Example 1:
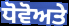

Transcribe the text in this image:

ਧੋਵੋਅਤੇ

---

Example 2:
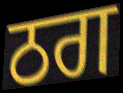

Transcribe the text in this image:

ਠਗ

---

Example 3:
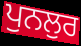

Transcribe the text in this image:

ਪੁਨਲੁਰ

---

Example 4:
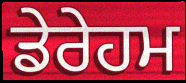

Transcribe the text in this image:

ਡੇਰੇਹਮ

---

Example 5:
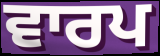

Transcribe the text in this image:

ਵਾਰਪ